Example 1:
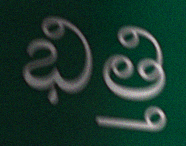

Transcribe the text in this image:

భిత్తి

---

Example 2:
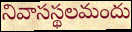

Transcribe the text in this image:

నివాసస్థలమందు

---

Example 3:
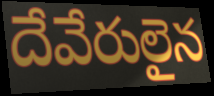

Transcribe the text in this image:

దేవేరులైన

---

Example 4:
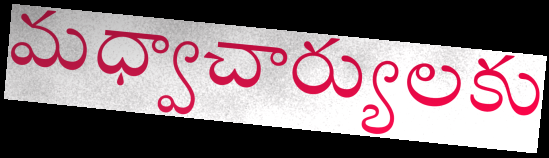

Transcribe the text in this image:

మధ్వాచార్యులకు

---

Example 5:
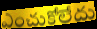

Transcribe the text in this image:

ఎంచుకోలేదు